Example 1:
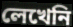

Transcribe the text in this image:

লেখেনি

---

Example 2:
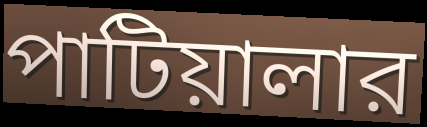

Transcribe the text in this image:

পাটিয়ালার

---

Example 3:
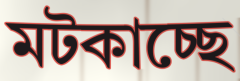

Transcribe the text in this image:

মটকাচ্ছে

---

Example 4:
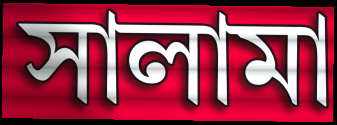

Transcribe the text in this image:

সালামা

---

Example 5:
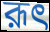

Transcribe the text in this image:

রূৎ